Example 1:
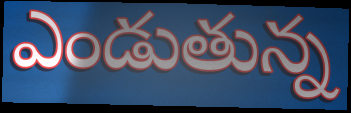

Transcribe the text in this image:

ఎండుతున్న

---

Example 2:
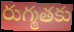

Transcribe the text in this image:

రుగ్మతకు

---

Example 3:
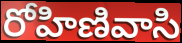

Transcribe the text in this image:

రోహిణివాసి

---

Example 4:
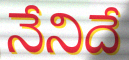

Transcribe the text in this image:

నేనిదే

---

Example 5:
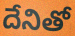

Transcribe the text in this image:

దేనితో